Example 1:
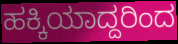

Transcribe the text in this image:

ಹಕ್ಕಿಯಾದ್ದರಿಂದ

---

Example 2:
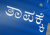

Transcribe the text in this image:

ತಾಪಕ್ಕೆ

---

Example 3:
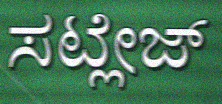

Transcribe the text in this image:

ಸಟ್ಲೇಜ್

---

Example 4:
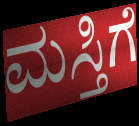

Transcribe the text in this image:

ಮಸ್ತಿಗೆ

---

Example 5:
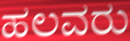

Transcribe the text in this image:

ಹಲವರು